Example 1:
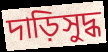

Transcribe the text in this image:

দাড়িসুদ্ধ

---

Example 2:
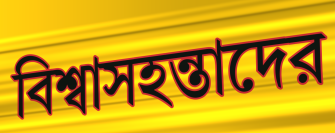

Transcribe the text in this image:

বিশ্বাসহন্তাদের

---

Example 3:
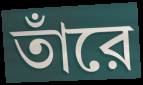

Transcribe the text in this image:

তাঁরে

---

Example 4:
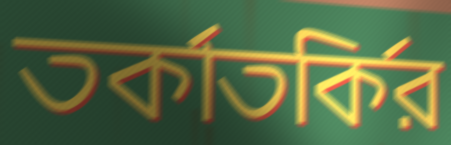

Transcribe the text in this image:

তর্কাতর্কির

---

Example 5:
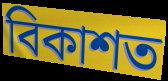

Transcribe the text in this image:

বিকাশত